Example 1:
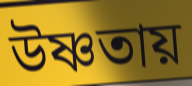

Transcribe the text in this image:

উষ্ণতায়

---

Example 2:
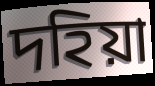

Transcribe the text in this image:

দহিয়া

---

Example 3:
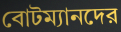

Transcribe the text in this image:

বোটম্যানদের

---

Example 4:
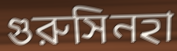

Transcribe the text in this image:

গুরুসিনহা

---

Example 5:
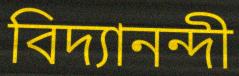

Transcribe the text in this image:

বিদ্যানন্দী